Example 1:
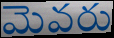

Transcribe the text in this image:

మెవరు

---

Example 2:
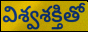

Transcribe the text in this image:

విశ్వశక్తితో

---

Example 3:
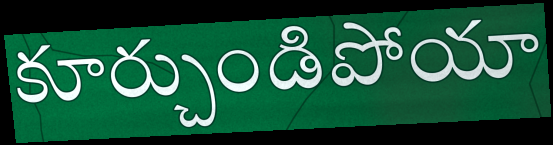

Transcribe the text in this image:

కూర్చుండిపోయా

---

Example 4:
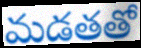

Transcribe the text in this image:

మడతతో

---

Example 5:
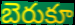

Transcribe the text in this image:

బెరుకూ